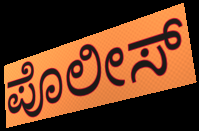
ಪೊಲೀಸ್